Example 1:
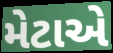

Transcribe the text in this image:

મેટાએ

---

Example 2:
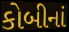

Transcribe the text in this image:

કોબીનાં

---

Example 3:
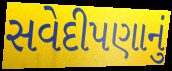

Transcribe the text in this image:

સવેદીપણાનું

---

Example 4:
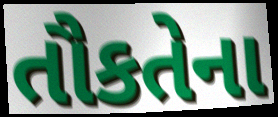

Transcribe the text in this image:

તૌકતેના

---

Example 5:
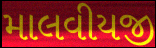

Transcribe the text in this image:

માલવીયજી